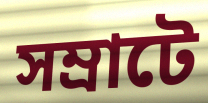
সম্ৰাটে